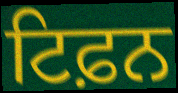
ਟਿਫ਼ਨ